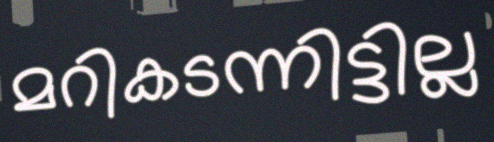
മറികടന്നിട്ടില്ല